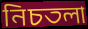
নিচতলা